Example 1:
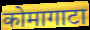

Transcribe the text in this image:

कोमागाटा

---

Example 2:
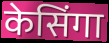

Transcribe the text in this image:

केसिंगा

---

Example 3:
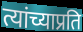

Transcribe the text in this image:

त्यांच्याप्रति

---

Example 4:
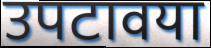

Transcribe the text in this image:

उपटावया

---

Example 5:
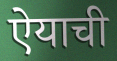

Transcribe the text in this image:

ऐयाची